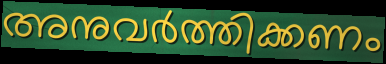
അനുവർത്തിക്കണം